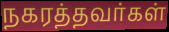
நகரத்தவர்கள்